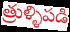
త్రుళ్ళిపడి